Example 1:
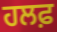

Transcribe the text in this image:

ਹਲਫ਼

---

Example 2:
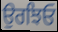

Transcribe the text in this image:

ਉਰਝਿਓ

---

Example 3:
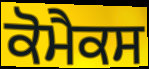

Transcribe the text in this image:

ਕੋਮੈਕਸ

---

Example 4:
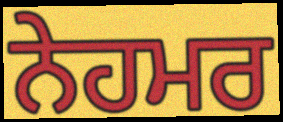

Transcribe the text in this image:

ਨੇਹਮਰ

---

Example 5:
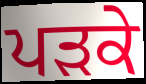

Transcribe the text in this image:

ਪੜਕੇ